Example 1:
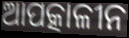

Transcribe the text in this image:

ଆପତ୍କାଳୀନ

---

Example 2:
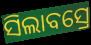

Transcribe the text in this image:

ସିଲାବସ୍ରେ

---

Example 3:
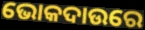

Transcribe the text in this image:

ଭୋକଦାଉରେ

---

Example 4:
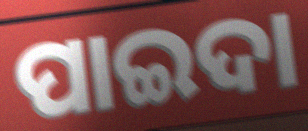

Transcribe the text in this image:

ପାଇଦା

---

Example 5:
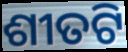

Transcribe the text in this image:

ଶୀତଟି